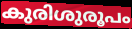
കുരിശുരൂപം